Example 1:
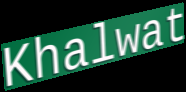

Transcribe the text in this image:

Khalwat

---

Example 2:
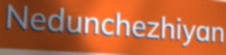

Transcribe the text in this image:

Nedunchezhiyan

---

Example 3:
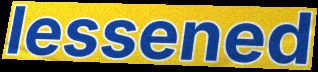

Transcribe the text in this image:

lessened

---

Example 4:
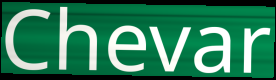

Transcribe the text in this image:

Chevar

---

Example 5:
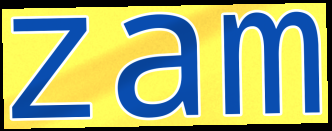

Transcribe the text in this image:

zam